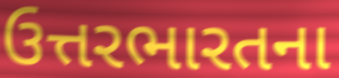
ઉત્તરભારતના